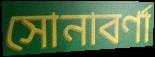
সোনাবর্ণা